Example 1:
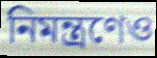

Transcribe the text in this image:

নিমন্ত্রণেও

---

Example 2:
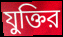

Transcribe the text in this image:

যুক্তির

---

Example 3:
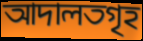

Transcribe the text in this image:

আদালতগৃহ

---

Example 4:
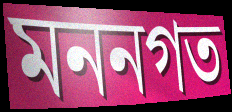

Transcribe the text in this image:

মননগত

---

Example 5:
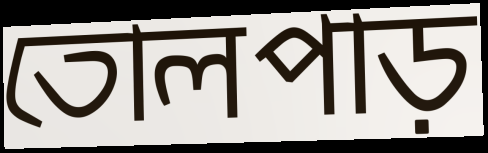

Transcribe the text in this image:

তোলপাড়